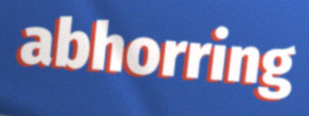
abhorring